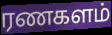
ரணகளம்